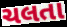
ચલતા